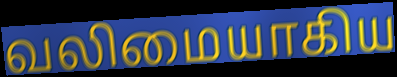
வலிமையாகிய